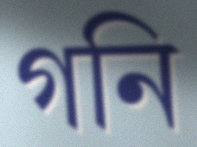
গনি